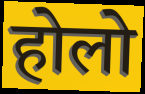
होलो